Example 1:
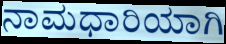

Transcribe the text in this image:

ನಾಮಧಾರಿಯಾಗಿ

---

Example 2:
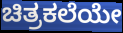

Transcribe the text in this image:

ಚಿತ್ರಕಲೆಯೇ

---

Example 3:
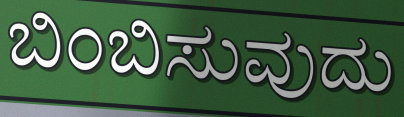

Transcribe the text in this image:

ಬಿಂಬಿಸುವುದು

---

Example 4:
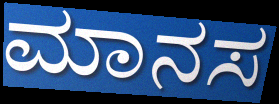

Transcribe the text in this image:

ಮಾನಸ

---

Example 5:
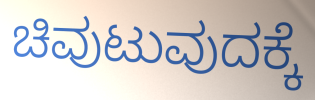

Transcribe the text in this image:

ಚಿವುಟುವುದಕ್ಕೆ